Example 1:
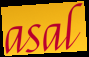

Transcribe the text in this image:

asal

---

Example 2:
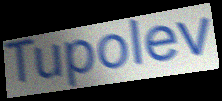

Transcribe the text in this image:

Tupolev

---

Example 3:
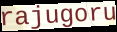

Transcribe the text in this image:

rajugoru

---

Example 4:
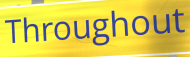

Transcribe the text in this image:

Throughout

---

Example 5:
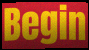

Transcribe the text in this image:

Begin